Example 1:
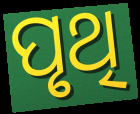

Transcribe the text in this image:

ପୃଥି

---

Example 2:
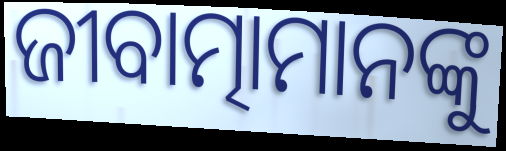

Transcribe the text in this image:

ଜୀବାତ୍ମାମାନଙ୍କୁ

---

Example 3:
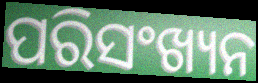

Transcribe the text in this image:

ପରିସଂଖ୍ୟନ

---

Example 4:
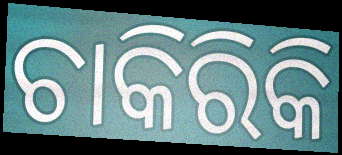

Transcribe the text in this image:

ଚାକିରିକି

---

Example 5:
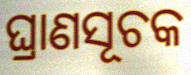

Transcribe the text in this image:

ଘ୍ରାଣସୂଚକ